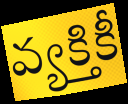
వ్యక్తికీ